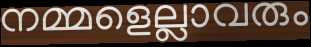
നമ്മളെല്ലാവരും